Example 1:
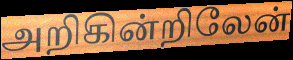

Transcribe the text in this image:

அறிகின்றிலேன்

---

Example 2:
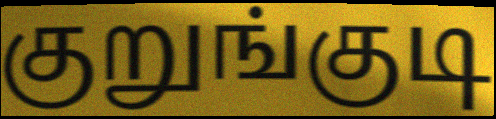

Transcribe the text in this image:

குறுங்குடி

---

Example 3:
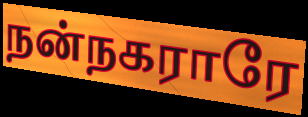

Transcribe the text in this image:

நன்நகராரே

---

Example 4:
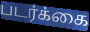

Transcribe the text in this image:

படர்க்கை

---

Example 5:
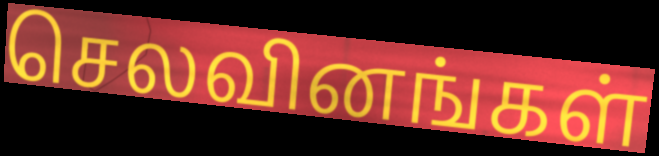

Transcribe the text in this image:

செலவினங்கள்